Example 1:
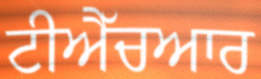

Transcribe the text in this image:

ਟੀਐੱਚਆਰ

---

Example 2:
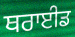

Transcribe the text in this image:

ਥਰਾਈਡ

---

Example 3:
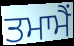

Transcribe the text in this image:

ਤਮਾਮੈਂ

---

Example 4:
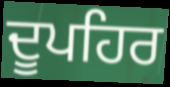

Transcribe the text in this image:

ਦੂਪਹਿਰ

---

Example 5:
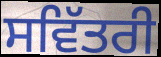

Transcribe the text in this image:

ਸਵਿੱਤਰੀ